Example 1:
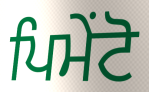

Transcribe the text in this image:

ਪਿਮੇਂਟੋ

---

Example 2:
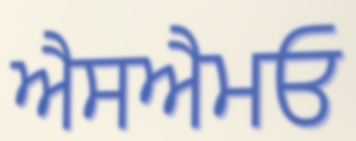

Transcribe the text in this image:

ਐਸਐਮਓ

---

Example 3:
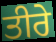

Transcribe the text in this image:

ਤੀਰੇ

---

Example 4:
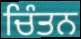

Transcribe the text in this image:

ਚਿੰਤਨ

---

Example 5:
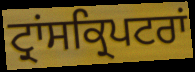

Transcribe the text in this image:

ਟ੍ਰਾਂਸਕ੍ਰਿਪਟਰਾਂ